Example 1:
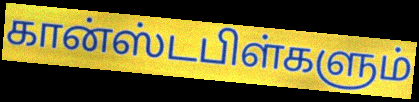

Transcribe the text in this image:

கான்ஸ்டபிள்களும்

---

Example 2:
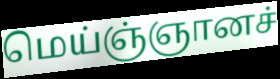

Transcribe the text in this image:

மெய்ஞ்ஞானச்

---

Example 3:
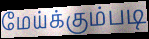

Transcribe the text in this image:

மேய்க்கும்படி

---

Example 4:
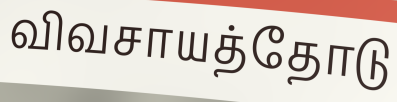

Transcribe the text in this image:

விவசாயத்தோடு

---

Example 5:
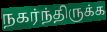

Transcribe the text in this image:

நகர்ந்திருக்க